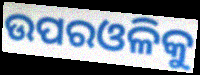
ଉପରଓଳିକୁ